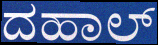
ದಹಾಲ್